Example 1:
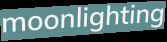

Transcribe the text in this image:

moonlighting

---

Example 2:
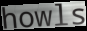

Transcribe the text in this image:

howls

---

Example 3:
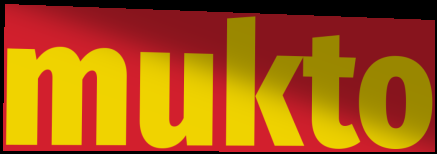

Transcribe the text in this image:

mukto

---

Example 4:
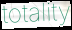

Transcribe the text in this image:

totality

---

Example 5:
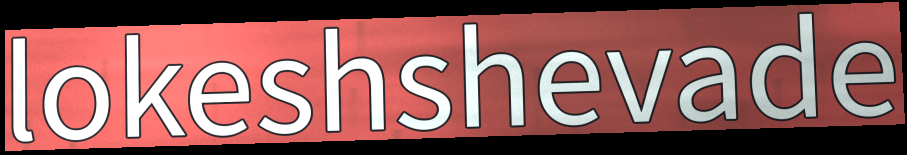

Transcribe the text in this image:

lokeshshevade